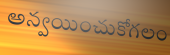
అన్వయించుకోగలం